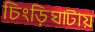
চিংড়িঘাটায়